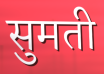
सुमती